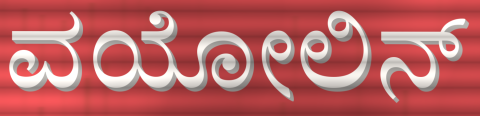
ವಯೋಲಿನ್